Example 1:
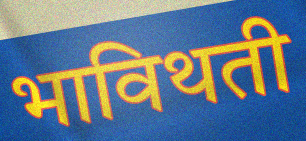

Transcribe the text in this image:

भाविथती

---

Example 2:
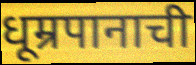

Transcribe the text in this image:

धूम्रपानाची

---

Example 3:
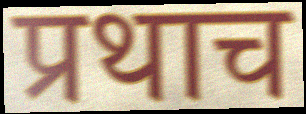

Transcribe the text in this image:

प्रथाच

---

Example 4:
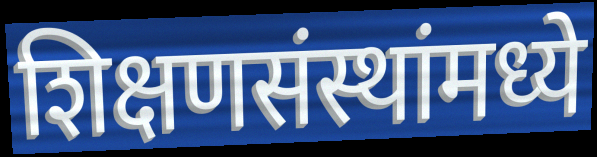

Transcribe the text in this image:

शिक्षणसंस्थांमध्ये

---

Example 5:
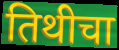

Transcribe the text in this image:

तिथीचा